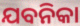
ଯବନିକା